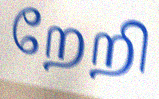
றேறி